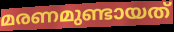
മരണമുണ്ടായത്